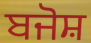
ਬਜੋਸ਼